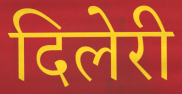
दिलेरी